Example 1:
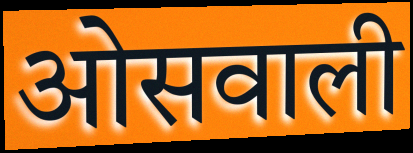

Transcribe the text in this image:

ओसवाली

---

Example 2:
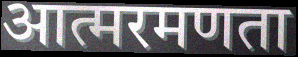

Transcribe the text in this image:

आत्मरमणता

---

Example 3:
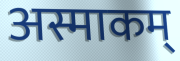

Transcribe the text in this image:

अस्माकम्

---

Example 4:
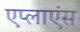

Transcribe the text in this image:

एप्लाएंस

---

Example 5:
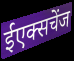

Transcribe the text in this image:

ईएक्सचेंज